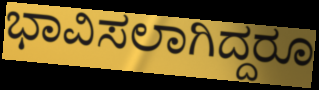
ಭಾವಿಸಲಾಗಿದ್ದರೂ